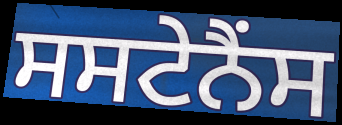
ਸਸਟੇਨੈਂਸ